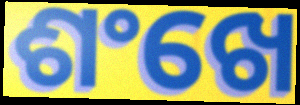
ଶଂଖେ